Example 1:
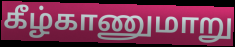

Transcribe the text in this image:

கீழ்காணுமாறு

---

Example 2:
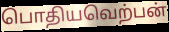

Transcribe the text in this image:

பொதியவெற்பன்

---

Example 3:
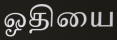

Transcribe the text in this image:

ஓதியை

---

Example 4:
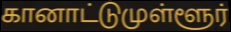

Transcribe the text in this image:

கானாட்டுமுள்ளூர்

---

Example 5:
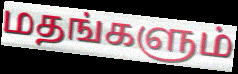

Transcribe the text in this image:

மதங்களும்